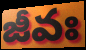
జీవః